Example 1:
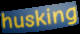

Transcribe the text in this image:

husking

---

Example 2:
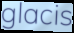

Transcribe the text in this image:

glacis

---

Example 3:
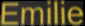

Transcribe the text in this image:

Emilie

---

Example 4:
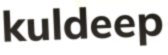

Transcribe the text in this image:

kuldeep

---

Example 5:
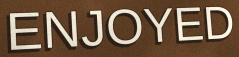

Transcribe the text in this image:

ENJOYED